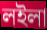
লইলা